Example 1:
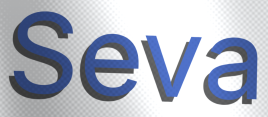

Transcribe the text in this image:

Seva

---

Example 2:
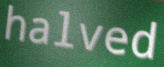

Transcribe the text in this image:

halved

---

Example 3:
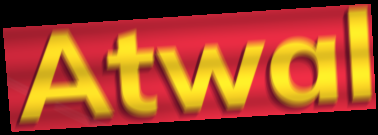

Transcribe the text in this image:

Atwal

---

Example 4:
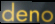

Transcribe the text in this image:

deno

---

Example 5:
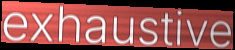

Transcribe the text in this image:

exhaustive